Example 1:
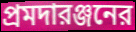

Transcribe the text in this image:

প্রমদারঞ্জনের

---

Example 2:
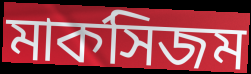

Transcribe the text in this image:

মার্কসিজম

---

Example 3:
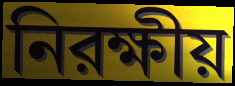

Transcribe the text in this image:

নিরক্ষীয়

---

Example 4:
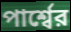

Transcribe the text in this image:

পার্শ্বের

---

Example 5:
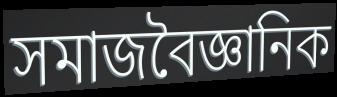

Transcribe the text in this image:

সমাজবৈজ্ঞানিক